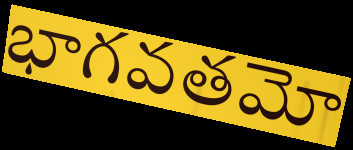
భాగవతమో